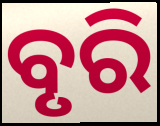
ବୃରି